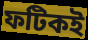
ফটিকই